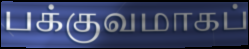
பக்குவமாகப்